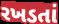
રખડતાં